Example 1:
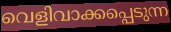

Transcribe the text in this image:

വെളിവാക്കപ്പെടുന്ന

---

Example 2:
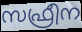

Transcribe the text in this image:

സഫ്രീന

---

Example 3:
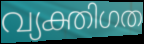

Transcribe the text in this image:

വ്യക്തിഗത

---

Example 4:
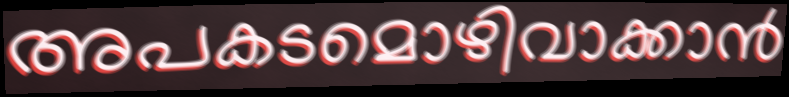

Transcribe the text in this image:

അപകടമൊഴിവാക്കാൻ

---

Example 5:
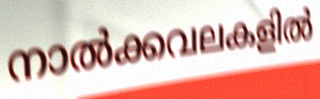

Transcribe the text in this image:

നാൽക്കവലകളിൽ